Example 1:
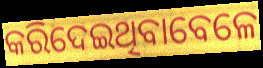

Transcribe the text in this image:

କରିଦେଇଥିବାବେଳେ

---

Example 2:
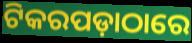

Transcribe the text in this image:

ଟିକରପଡ଼ାଠାରେ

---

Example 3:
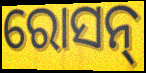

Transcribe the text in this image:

ରୋସନ୍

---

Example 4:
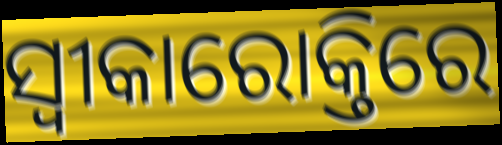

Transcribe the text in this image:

ସ୍ୱୀକାରୋକ୍ତିରେ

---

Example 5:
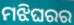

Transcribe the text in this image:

ମଝିଘରର